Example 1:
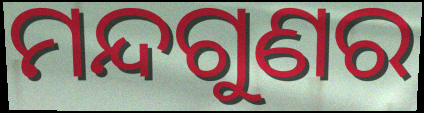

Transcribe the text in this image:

ମନ୍ଦଗୁଣର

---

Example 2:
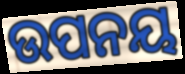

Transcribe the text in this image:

ଉପନୟ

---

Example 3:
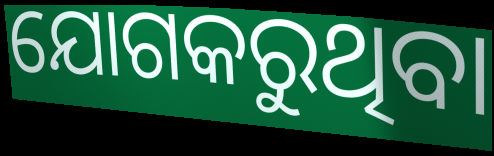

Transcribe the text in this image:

ଯୋଗକରୁଥିବା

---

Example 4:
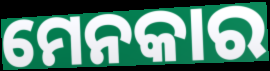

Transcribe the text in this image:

ମେନକାର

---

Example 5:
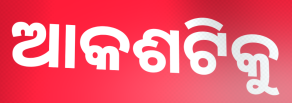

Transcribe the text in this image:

ଆକଶଟିକୁ